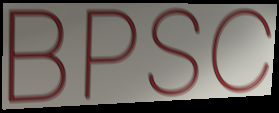
BPSC